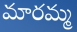
మారమ్మ